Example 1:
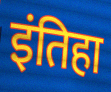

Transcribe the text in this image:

इंतिहा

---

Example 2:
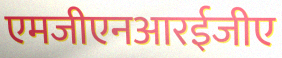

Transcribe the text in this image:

एमजीएनआरईजीए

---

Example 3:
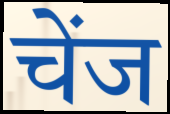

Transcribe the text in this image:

चेंज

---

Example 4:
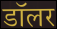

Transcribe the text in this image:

डॉलर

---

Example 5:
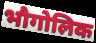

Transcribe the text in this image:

भौगोलिक